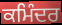
ਕਮਿੰਦਰ